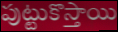
పుట్టుకొస్తాయి